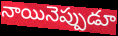
నాయినెప్పుడూ